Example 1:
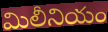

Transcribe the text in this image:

మిలీనియం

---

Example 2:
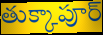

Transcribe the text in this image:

తుక్కాపూర్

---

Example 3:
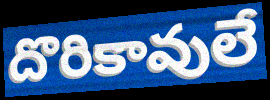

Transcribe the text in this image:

దొరికావులే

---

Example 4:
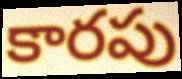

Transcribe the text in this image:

కారపు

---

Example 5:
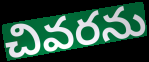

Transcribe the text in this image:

చివరను